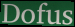
Dofus